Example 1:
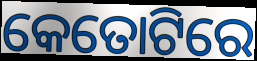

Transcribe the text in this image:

କେତୋଟିରେ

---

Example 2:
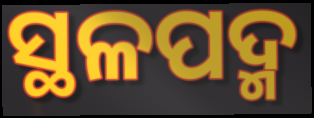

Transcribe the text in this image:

ସ୍ଥଳପଦ୍ମ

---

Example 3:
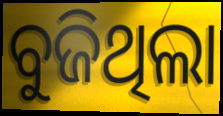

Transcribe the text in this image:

ବୁଜିଥିଲା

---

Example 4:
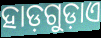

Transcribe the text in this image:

ହାଡ଼ଗୁଡ଼ାଏ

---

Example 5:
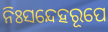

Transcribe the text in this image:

ନିଃସନ୍ଦେହରୂପେ